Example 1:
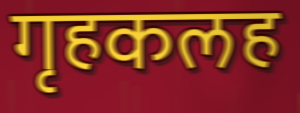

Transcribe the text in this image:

गृहकलह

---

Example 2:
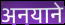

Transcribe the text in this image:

अनयाने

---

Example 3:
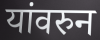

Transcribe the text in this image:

यांवरुन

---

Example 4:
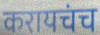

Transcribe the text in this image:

करायचंच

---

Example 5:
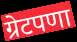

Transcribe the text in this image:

ग्रेटपणा